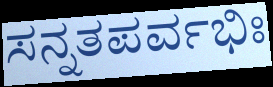
ಸನ್ನತಪರ್ವಭಿಃ